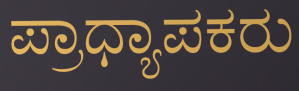
ಪ್ರಾಧ್ಯಾಪಕರು